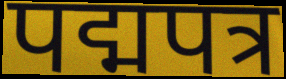
पद्मपत्र